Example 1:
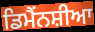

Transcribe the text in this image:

ਡਿਮੈਂਨਸ਼ੀਆ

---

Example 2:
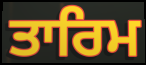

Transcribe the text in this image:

ਤਾਰਿਮ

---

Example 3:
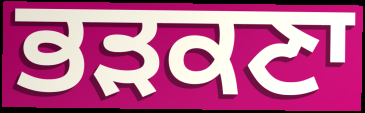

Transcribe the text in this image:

ਭੜਕਣਾ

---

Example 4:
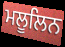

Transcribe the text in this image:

ਮਲੂਲਿਨ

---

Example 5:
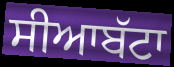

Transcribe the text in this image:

ਸੀਆਬੱਟਾ